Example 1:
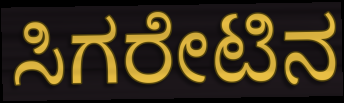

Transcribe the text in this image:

ಸಿಗರೇಟಿನ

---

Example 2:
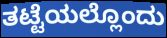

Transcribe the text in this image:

ತಟ್ಟೆಯಲ್ಲೊಂದು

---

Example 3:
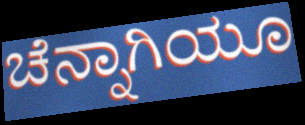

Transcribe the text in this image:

ಚೆನ್ನಾಗಿಯೂ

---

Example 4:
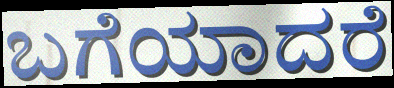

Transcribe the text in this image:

ಬಗೆಯಾದರೆ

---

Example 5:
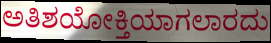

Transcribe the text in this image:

ಅತಿಶಯೋಕ್ತಿಯಾಗಲಾರದು